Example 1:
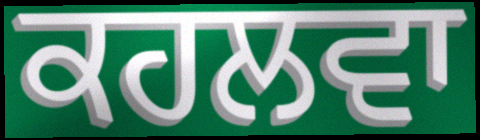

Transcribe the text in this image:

ਕਹਲਵਾ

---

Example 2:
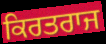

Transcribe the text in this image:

ਕਿਰਤਰਾਜ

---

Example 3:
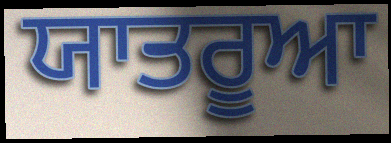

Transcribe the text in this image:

ਯਾਤਰੂਆ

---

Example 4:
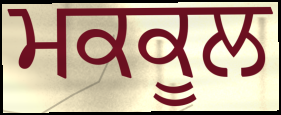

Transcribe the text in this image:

ਮਕਕੂਲ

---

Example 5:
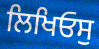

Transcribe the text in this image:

ਲਿਖਿਓਸੁ